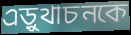
এড়ুথাচনকে